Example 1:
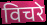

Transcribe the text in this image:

विचरे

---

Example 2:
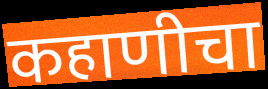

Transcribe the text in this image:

कहाणीचा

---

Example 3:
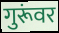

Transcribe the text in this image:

गुरूंवर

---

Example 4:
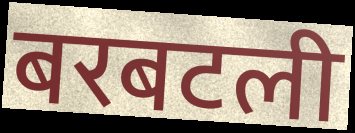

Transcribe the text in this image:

बरबटली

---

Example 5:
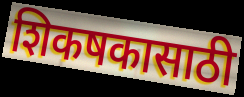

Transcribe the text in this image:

शिकषकासाठी